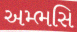
અમ્ભસિ